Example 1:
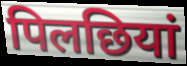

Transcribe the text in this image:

पिलछियां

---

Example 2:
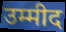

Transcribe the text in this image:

उम्‍मीद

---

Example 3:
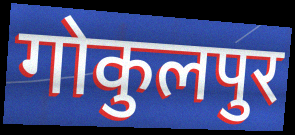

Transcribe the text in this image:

गोकुलपुर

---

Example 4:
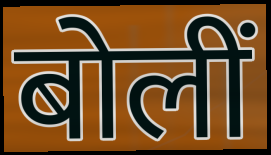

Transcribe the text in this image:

बोलीं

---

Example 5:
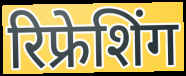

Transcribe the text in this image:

रिफ्रेशिंग